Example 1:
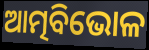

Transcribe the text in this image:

ଆତ୍ମବିଭୋଳ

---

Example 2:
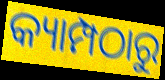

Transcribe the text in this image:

କ୍ୟାମ୍ପଠାରୁ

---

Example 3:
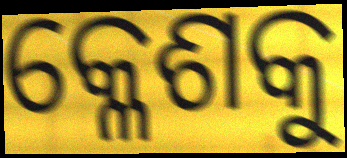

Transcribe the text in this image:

କ୍ଳେଶକୁ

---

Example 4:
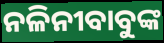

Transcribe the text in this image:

ନଳିନୀବାବୁଙ୍କ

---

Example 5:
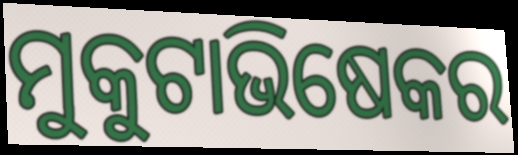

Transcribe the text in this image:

ମୁକୁଟାଭିଷେକର